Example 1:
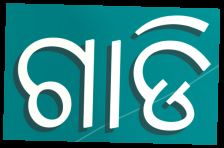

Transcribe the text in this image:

ଗାଡି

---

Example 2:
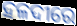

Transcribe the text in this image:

ହଳଦୀରେ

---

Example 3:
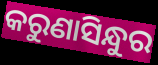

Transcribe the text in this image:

କରୁଣାସିନ୍ଧୁର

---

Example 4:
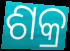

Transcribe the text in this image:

ଶକ୍ର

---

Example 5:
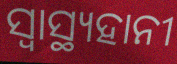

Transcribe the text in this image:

ସ୍ବାସ୍ଥ୍ୟହାନୀ